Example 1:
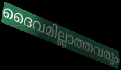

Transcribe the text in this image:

ദൈവമില്ലാത്തവരും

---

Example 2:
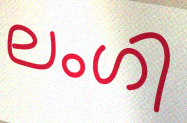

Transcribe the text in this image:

ലംഗി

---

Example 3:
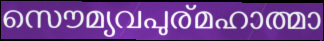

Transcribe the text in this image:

സൌമ്യവപുര്മഹാത്മാ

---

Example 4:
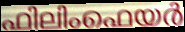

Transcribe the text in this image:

ഫിലിംഫെയർ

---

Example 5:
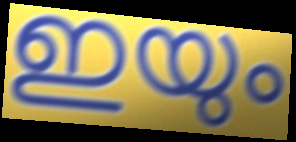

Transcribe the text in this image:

ഇയും